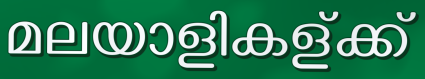
മലയാളികള്ക്ക്